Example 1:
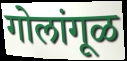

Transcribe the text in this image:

गोलांगूळ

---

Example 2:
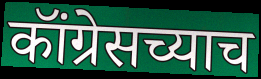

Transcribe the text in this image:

कॉंग्रेसच्याच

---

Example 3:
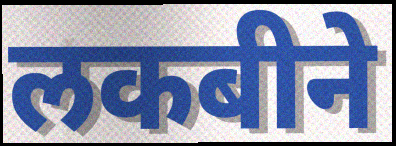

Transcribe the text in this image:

लकबीने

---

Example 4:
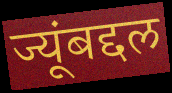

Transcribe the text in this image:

ज्यूंबद्दल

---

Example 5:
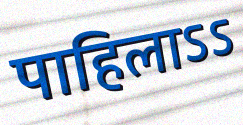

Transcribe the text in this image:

पाहिलाऽऽ